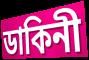
ডাকিনী